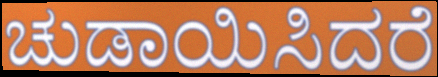
ಚುಡಾಯಿಸಿದರೆ